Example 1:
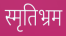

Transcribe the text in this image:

स्मृतिभ्रम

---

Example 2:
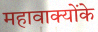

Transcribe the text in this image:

महावाक्योंके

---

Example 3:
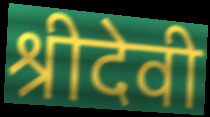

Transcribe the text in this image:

श्रीदेवी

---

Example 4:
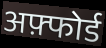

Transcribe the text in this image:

अफ़्फोर्ड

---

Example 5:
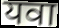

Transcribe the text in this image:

यवा